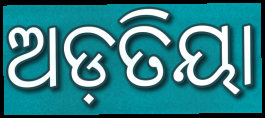
ଅଡ଼ତିୟା